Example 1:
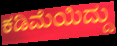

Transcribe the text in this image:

ಕಡಿಮೆಯಿದ್ದು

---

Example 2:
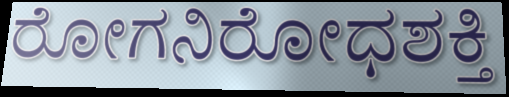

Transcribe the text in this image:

ರೋಗನಿರೋಧಶಕ್ತಿ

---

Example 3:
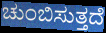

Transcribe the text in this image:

ಚುಂಬಿಸುತ್ತದೆ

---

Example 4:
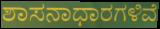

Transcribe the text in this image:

ಶಾಸನಾಧಾರಗಳಿವೆ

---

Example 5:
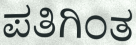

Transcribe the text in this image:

ಪತಿಗಿಂತ